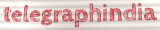
telegraphindia